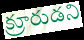
క్రూరుడని